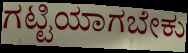
ಗಟ್ಟಿಯಾಗಬೇಕು